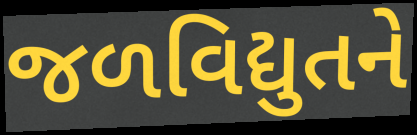
જળવિદ્યુતને